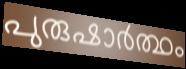
പുരുഷാർത്ഥം